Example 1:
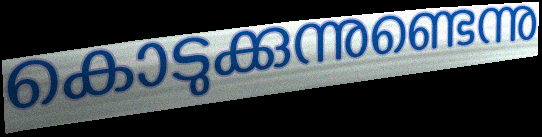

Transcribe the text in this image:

കൊടുക്കുന്നുണ്ടെന്നു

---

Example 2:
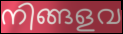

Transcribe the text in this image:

നിങ്ങളവ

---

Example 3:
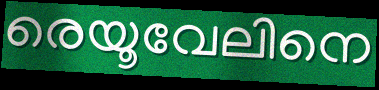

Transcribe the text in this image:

രെയൂവേലിനെ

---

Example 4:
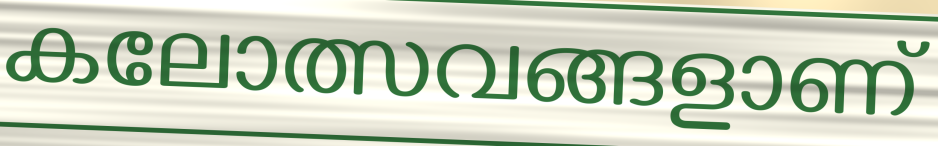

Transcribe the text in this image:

കലോത്സവങ്ങളാണ്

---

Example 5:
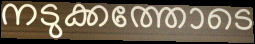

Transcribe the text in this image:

നടുക്കത്തോടെ